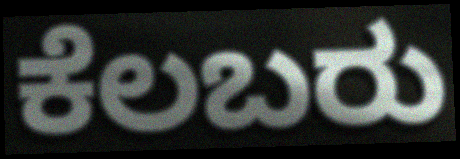
ಕೆಲಬರು